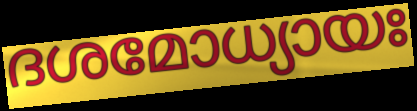
ദശമോധ്യായഃ